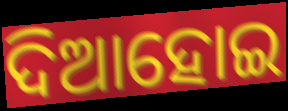
ଦିଆହୋଇ